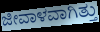
ಜೀವಾಳವಾಗಿತ್ತು